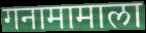
गनामामाला